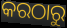
କରଠାରୁ